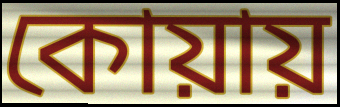
কোয়ায়